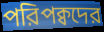
পরিপক্বদের